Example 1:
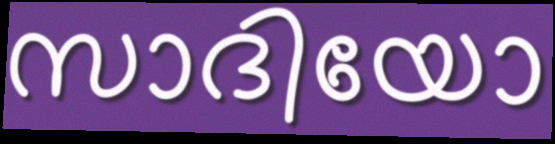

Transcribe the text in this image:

സാദിയോ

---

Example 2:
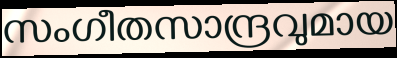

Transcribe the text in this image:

സംഗീതസാന്ദ്രവുമായ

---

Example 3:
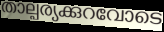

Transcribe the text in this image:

താല്പര്യക്കുറവോടെ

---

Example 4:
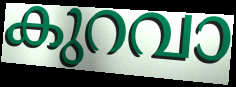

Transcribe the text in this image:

കുറവാ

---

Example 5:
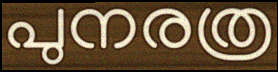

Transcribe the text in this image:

പുനരത്ര